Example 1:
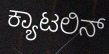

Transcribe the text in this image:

ಕ್ಯಾಟಲಿನ್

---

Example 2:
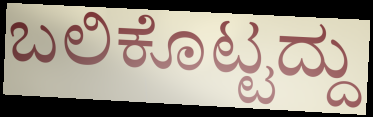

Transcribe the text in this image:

ಬಲಿಕೊಟ್ಟದ್ದು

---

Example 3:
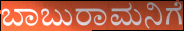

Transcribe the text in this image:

ಬಾಬುರಾಮನಿಗೆ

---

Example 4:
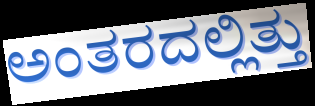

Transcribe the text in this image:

ಅಂತರದಲ್ಲಿತ್ತು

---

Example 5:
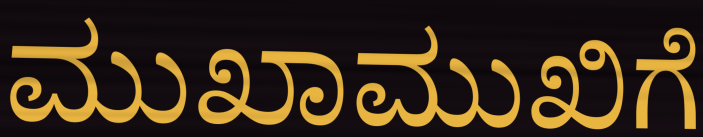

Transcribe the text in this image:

ಮುಖಾಮುಖಿಗೆ